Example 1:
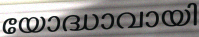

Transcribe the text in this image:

യോദ്ധാവായി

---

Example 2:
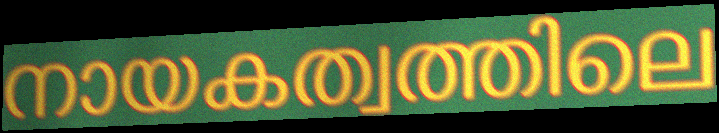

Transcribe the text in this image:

നായകത്വത്തിലെ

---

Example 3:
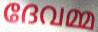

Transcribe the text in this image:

ദേവമ്മ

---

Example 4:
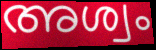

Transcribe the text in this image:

അശ്വം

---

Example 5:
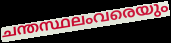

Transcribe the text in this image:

ചന്തസ്ഥലംവരെയും